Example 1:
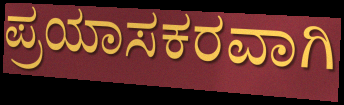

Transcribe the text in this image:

ಪ್ರಯಾಸಕರವಾಗಿ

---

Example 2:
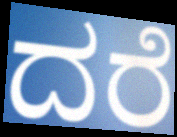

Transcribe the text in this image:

ದರೆ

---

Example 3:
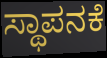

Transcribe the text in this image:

ಸ್ಥಾಪನಕೆ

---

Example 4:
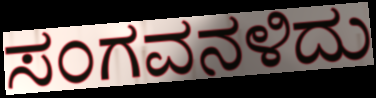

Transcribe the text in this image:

ಸಂಗವನಳಿದು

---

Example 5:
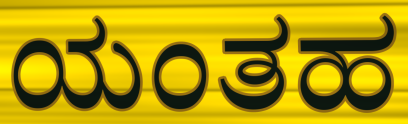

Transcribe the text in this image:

ಯಂತಹ